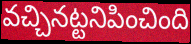
వచ్చినట్టనిపించింది